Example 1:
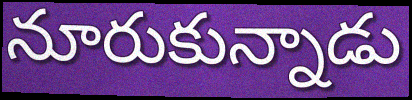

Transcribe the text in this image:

నూరుకున్నాడు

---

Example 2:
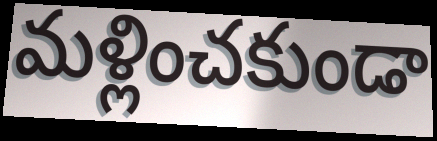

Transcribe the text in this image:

మళ్లించకుండా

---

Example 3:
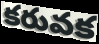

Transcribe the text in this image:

కరువక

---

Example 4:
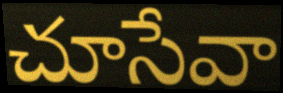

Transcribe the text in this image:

చూసేవా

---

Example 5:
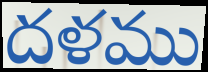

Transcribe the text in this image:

దళము